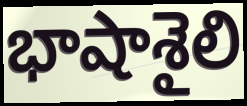
భాషాశైలి